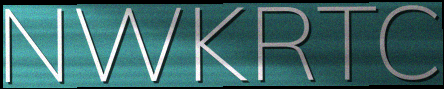
NWKRTC